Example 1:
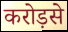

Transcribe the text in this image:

करोड़से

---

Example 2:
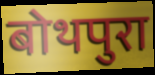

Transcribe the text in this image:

बोथपुरा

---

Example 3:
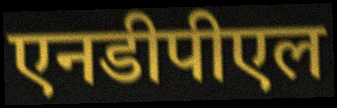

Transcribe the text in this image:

एनडीपीएल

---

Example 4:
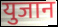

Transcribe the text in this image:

युजान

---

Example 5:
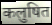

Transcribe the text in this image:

कलुषित